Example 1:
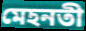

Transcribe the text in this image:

মেহনতী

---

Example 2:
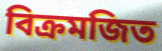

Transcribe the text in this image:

বিক্রমজিত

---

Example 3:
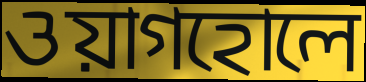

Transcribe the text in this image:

ওয়াগহোলে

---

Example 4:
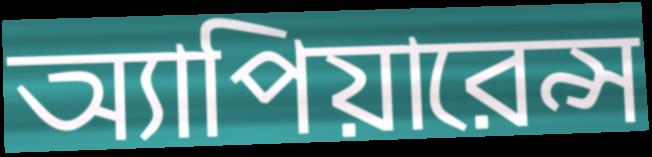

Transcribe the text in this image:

অ্যাপিয়ারেন্স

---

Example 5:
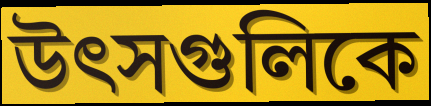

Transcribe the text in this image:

উৎসগুলিকে